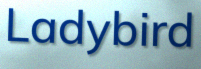
Ladybird